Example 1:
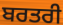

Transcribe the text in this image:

ਬਰਤਰੀ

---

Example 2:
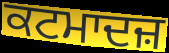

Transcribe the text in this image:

ਕਟਮਾਦਜ਼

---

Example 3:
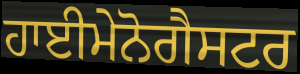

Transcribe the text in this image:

ਹਾਈਮੇਨੋਗੈਸਟਰ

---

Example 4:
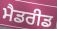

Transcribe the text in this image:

ਮੈਡਰੀਡ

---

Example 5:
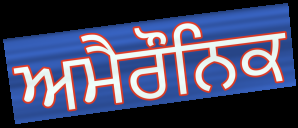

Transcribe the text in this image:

ਅਮੈਰੌਨਿਕ